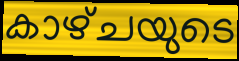
കാഴ്‌ചയുടെ